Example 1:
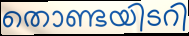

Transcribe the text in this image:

തൊണ്ടയിടറി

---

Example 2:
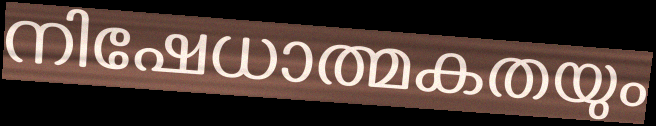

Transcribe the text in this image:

നിഷേധാത്മകതയും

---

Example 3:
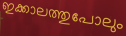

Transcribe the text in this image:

ഇക്കാലത്തുപോലും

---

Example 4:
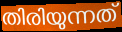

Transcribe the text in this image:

തിരിയുന്നത്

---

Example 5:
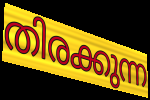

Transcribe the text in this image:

തിരക്കുന്ന